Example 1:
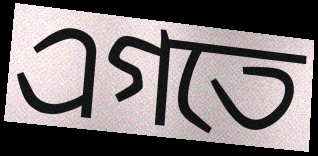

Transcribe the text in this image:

এগতে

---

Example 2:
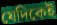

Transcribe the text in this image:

যেদিকেই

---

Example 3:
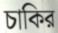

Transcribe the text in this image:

চাকির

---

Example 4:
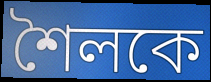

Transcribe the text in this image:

শৈলকে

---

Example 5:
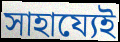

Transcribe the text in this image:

সাহায্যেই